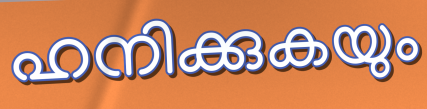
ഹനിക്കുകയും